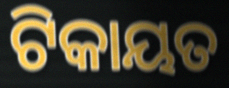
ଟିକାୟତ